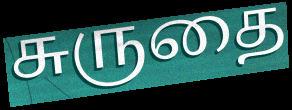
சுருதை